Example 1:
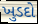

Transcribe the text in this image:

ખુડદો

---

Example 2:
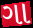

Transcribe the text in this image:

ગા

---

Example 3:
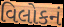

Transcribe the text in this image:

વિલોકનં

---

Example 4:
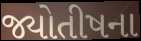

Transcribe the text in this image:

જ્યોતીષના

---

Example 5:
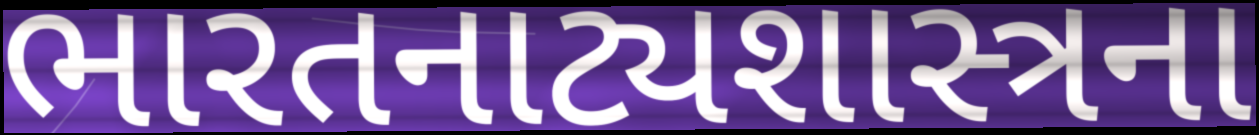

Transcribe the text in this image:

ભારતનાટ્યશાસ્ત્રના